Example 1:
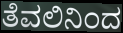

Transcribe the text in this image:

ತೆವಲಿನಿಂದ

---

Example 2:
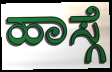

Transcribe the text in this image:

ಹಾಸ್ಗೆ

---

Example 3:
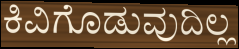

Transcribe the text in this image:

ಕಿವಿಗೊಡುವುದಿಲ್ಲ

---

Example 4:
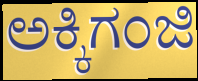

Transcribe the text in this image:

ಅಕ್ಕಿಗಂಜಿ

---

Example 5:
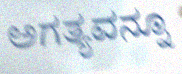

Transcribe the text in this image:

ಅಗತ್ಯವನ್ನೂ